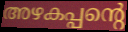
അഴകപ്പന്റെ